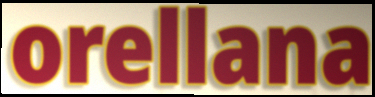
orellana